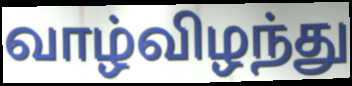
வாழ்விழந்து